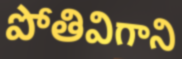
పోతివిగాని